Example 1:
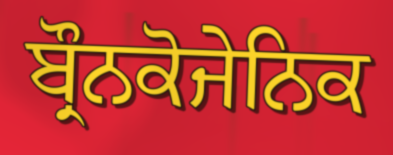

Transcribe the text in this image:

ਬ੍ਰੌਨਕੋਜੇਨਿਕ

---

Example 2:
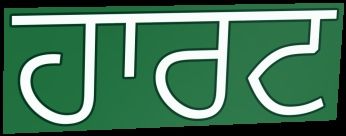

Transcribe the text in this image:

ਹਾਰਟ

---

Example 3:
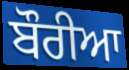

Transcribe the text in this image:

ਬੌਰੀਆ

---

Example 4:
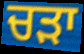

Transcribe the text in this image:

ਚੜਾ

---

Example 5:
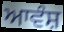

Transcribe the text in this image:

ਆਵੰਸ਼